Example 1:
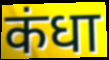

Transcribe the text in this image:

कंधा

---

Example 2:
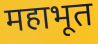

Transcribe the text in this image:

महाभूत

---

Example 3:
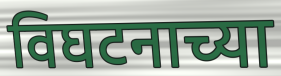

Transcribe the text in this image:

विघटनाच्या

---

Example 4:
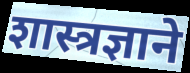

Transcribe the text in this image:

शास्त्रज्ञाने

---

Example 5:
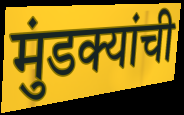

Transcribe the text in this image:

मुंडक्यांची